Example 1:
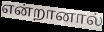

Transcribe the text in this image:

என்றானால்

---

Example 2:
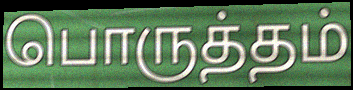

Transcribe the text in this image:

பொருத்தம்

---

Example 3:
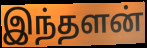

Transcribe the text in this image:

இந்தளன்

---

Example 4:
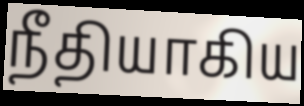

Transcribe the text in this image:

நீதியாகிய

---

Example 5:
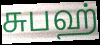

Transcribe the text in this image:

சுபஹ்